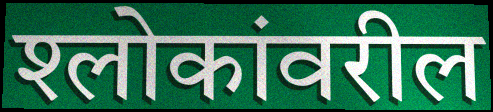
श्लोकांवरील